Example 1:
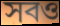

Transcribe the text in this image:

সবও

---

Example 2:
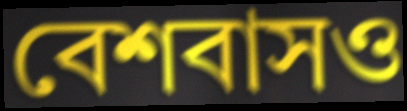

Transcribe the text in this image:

বেশবাসও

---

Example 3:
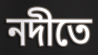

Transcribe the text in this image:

নদীতে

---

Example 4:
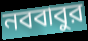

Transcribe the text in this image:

নববাবুর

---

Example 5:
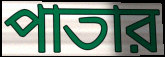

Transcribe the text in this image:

পাতার